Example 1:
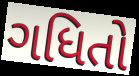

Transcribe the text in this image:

ગધિતો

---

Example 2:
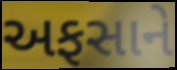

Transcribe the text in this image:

અફસાને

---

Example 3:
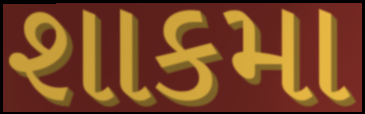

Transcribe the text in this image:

શાકમા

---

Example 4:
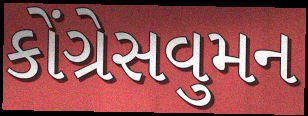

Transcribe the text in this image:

કોંગ્રેસવુમન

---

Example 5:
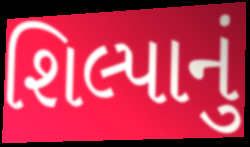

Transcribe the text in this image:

શિલ્પાનું